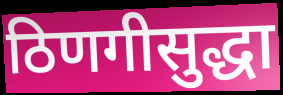
ठिणगीसुद्धा